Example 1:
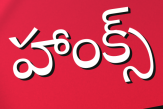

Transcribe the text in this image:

హాంక్స్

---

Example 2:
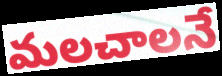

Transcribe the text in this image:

మలచాలనే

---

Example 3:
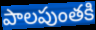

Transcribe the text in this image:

పాలపుంతకి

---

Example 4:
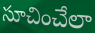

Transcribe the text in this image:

సూచించేలా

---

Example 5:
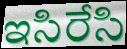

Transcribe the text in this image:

ఇసిరేసి